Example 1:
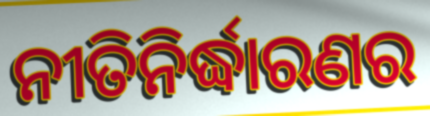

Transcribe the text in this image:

ନୀତିନିର୍ଦ୍ଧାରଣର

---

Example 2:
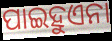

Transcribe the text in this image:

ପାଇହୁଏନା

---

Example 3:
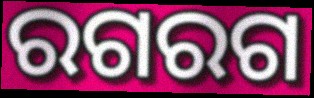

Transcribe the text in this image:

ରଗରଗ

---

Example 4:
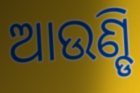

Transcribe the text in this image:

ଆଉଣ୍ଡି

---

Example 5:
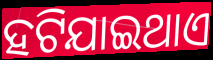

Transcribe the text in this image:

ହଟିଯାଇଥାଏ